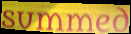
summed